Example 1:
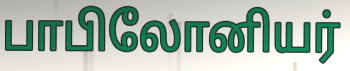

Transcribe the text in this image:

பாபிலோனியர்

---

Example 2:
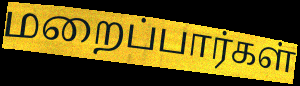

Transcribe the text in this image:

மறைப்பார்கள்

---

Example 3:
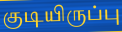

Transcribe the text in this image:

குடியிருப்பு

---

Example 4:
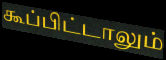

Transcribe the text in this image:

கூப்பிட்டாலும்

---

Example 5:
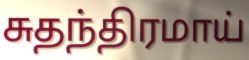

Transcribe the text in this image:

சுதந்திரமாய்